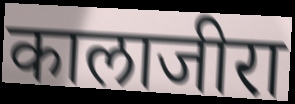
कालाजीरा